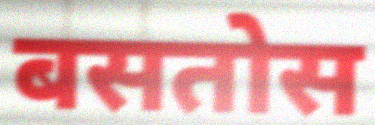
बसतोस